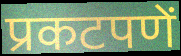
प्रकटपणें